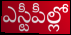
ఎస్టీపీల్లో